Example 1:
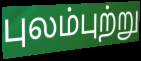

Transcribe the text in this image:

புலம்புற்று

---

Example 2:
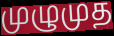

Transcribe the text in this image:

முழுமுத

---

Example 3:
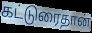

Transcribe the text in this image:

கட்டுரைதான்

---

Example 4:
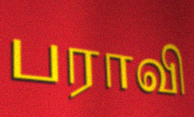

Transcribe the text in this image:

பராவி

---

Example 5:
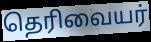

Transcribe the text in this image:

தெரிவையர்